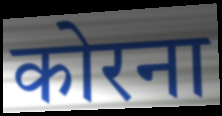
कोरना